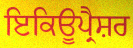
ਇਕਿਊਪ੍ਰੈਸ਼ਰ